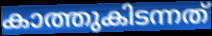
കാത്തുകിടന്നത്